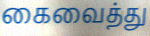
கைவைத்து